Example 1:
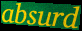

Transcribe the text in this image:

absurd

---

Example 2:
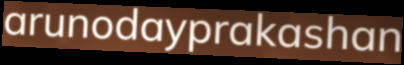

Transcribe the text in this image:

arunodayprakashan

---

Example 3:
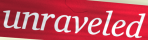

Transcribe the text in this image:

unraveled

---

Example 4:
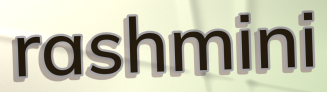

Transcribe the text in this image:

rashmini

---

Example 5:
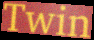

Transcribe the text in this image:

Twin